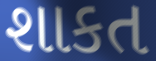
શાકત